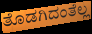
ತೊಡಗಿದಂತೆಲ್ಲ